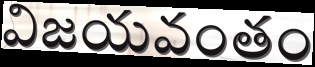
విజయవంతం